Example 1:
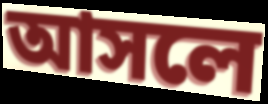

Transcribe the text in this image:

আসলে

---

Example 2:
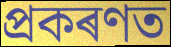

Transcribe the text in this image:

প্ৰকৰণত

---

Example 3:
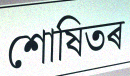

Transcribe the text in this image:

শোষিতৰ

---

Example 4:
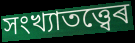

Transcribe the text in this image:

সংখ্যাতত্ত্বেৰ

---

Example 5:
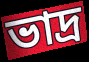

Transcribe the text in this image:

ভাদ্ৰ